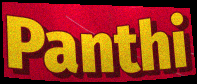
Panthi